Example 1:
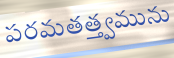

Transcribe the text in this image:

పరమతత్త్వమును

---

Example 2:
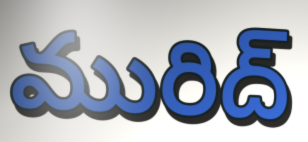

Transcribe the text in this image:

మురిద్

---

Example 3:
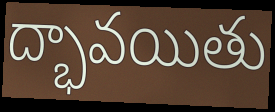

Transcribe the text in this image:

ద్భావయితు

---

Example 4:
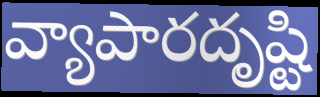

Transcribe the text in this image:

వ్యాపారదృష్టి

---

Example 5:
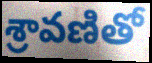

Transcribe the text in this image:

శ్రావణితో